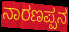
ನಾರಣಪ್ಪನ